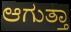
ಆಗುತ್ತಾ